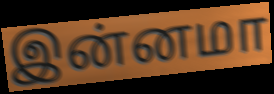
இன்னமா